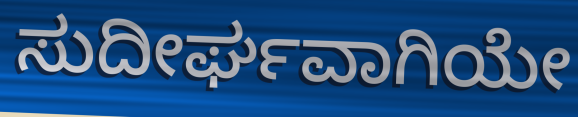
ಸುದೀರ್ಘವಾಗಿಯೇ